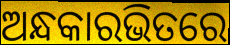
ଅନ୍ଧକାରଭିତରେ